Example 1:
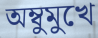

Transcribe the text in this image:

অম্বুমুখে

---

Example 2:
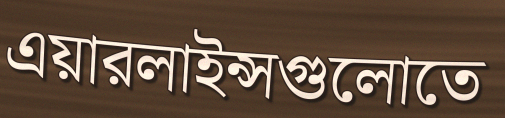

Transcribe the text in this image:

এয়ারলাইন্সগুলোতে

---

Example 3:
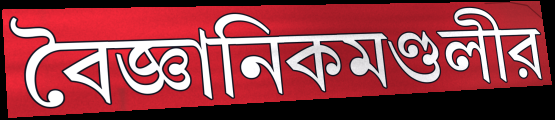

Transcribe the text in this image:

বৈজ্ঞানিকমণ্ডলীর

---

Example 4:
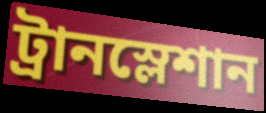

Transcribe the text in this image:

ট্রানস্লেশান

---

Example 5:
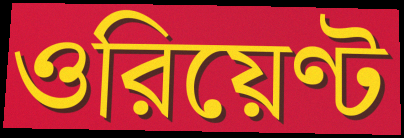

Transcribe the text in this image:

ওরিয়েণ্ট